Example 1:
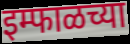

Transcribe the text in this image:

इम्फाळच्या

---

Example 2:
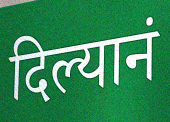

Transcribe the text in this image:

दिल्यानं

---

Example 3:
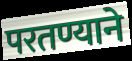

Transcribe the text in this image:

परतण्याने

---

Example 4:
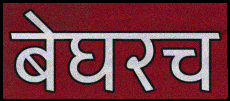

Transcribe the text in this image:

बेघरच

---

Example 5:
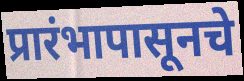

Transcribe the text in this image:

प्रारंभापासूनचे